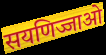
सयणिज्जाओ